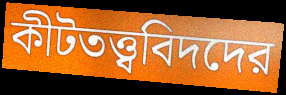
কীটতত্ত্ববিদদের